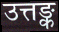
उत्तङ्क